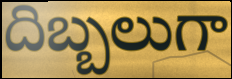
దిబ్బలుగా